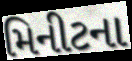
મિનીટના